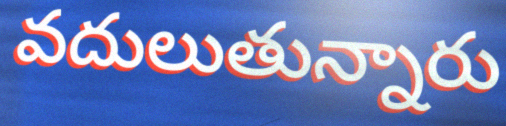
వదులుతున్నారు